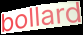
bollard